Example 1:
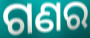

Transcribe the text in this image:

ଗଣର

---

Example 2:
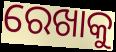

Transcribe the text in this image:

ରେଖାକୁ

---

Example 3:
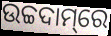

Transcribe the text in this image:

ଉଚ୍ଚଦାମ୍‌ରେ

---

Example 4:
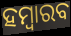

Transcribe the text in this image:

ହମ୍ବାରବ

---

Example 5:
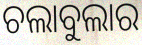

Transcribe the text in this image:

ଚଲାବୁଲାର